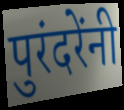
पुरंदरेंनी